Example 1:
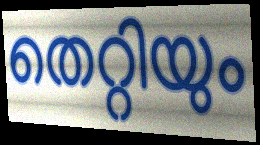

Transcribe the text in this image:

തെറ്റിയും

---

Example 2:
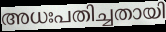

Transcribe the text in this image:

അധഃപതിച്ചതായി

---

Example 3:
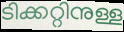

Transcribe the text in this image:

ടിക്കറ്റിനുള്ള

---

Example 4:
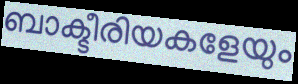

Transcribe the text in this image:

ബാക്ടീരിയകളേയും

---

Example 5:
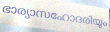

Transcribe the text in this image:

ഭാര്യാസഹോദരിയും